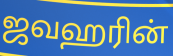
ஜவஹரின்